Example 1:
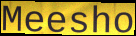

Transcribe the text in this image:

Meesho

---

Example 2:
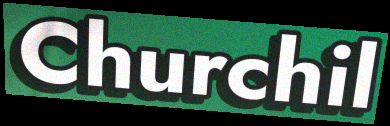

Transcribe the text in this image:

Churchil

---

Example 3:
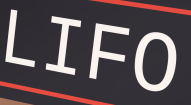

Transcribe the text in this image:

LIFO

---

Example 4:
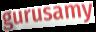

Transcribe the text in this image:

gurusamy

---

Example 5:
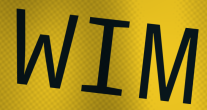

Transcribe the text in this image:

WIM